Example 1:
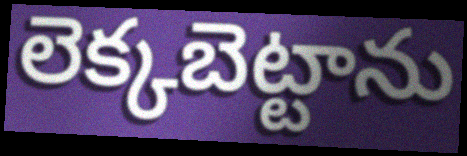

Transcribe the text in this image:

లెక్కబెట్టాను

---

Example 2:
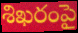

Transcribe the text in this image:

శిఖరంపై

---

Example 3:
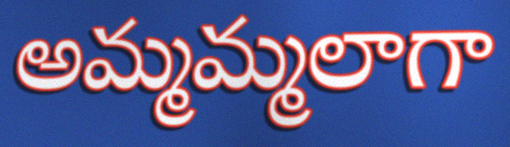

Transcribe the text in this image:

అమ్మమ్మలాగా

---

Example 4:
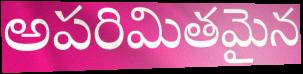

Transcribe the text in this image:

అపరిమితమైన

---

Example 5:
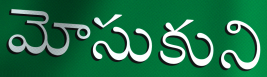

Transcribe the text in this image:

మోసుకుని